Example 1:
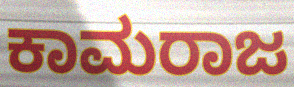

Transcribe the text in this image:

ಕಾಮರಾಜ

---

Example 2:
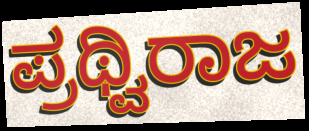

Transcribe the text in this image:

ಪ್ರಥ್ವಿರಾಜ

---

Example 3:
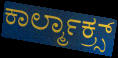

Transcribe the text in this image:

ಕಾರ್ಲ್ಮಾಕ್ರ್ಸ್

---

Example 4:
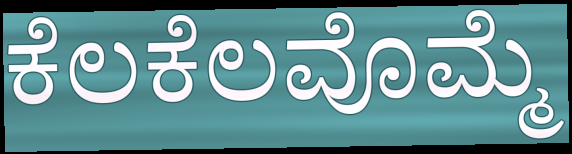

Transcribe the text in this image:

ಕೆಲಕೆಲವೊಮ್ಮೆ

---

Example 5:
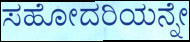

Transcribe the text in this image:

ಸಹೋದರಿಯನ್ನೇ